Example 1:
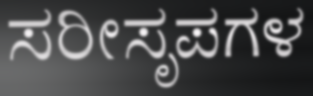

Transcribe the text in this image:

ಸರೀಸೃಪಗಳ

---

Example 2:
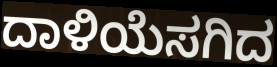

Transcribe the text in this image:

ದಾಳಿಯೆಸಗಿದ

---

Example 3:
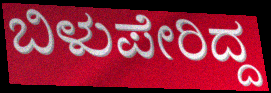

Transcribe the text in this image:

ಬಿಳುಪೇರಿದ್ದ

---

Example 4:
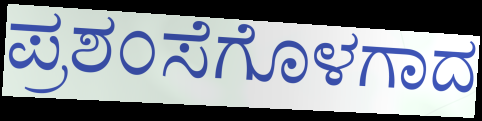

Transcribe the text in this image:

ಪ್ರಶಂಸೆಗೊಳಗಾದ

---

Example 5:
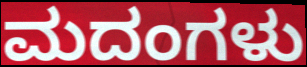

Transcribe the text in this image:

ಮದಂಗಳು